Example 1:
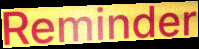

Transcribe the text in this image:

Reminder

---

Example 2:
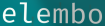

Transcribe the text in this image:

elembo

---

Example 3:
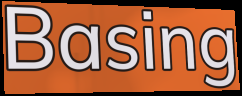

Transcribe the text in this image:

Basing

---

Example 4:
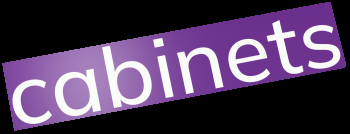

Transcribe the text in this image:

cabinets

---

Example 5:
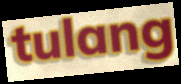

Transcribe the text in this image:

tulang